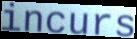
incurs